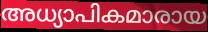
അധ്യാപികമാരായ